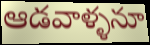
ఆడవాళ్ళనూ